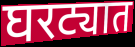
घरट्यात